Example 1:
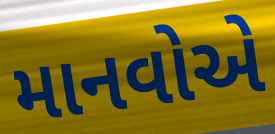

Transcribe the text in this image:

માનવોએ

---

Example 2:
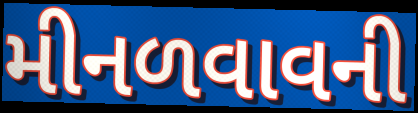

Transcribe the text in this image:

મીનળવાવની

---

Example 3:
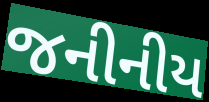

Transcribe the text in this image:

જનીનીય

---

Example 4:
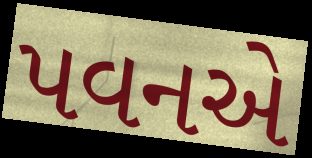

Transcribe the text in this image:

પવનએ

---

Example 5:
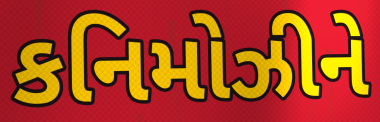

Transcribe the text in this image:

કનિમોઝીને